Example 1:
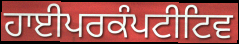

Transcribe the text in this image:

ਹਾਈਪਰਕੰਪਟੀਟਿਵ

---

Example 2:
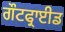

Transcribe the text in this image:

ਗੌਟਫ੍ਰਾਈਡ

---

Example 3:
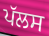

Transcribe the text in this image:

ਪੱਲਸ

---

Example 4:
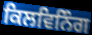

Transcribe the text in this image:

ਕਿਲਵਿਨਿੰਗ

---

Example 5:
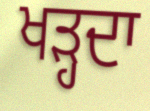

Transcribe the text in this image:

ਖੜ੍ਹਦਾ